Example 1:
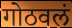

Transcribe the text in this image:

गोठवलं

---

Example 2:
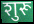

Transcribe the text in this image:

शुरू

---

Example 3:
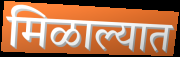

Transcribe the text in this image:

मिळाल्यात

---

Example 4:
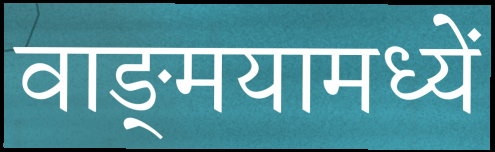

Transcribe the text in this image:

वाङ्‌मयामध्यें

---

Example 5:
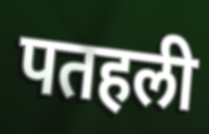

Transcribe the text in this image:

पतहली